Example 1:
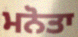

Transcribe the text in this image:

ਮਨੋਤਾ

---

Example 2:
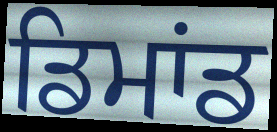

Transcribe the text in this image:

ਡਿਮਾਂਡ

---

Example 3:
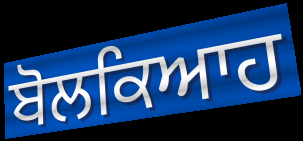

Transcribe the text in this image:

ਬੋਲਕਿਆਹ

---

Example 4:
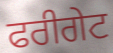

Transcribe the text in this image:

ਫਰੀਗੇਟ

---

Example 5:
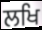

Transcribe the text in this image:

ਲਖਿ